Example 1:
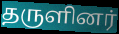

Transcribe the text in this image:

தருளினர்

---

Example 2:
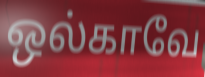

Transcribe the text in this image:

ஒல்காவே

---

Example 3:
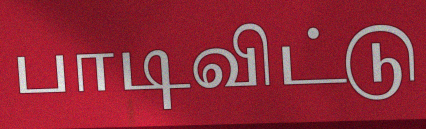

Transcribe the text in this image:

பாடிவிட்டு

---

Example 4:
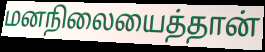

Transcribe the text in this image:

மனநிலையைத்தான்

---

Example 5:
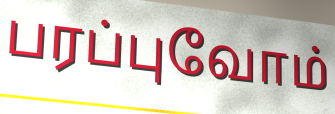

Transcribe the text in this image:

பரப்புவோம்